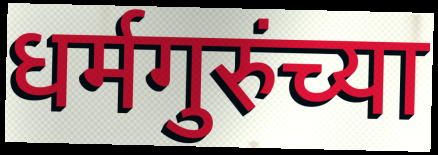
धर्मगुरुंच्या